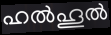
ഹൽഹൂൽ